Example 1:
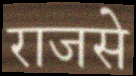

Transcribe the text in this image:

राजसे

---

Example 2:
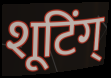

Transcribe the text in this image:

शूटिंग्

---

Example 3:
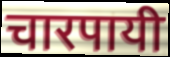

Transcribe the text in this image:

चारपायी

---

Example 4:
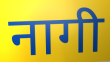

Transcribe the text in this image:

नागी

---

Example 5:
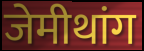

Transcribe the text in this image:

जेमीथांग